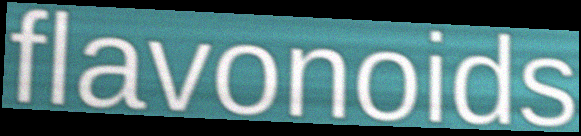
flavonoids